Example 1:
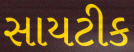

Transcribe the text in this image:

સાયટીક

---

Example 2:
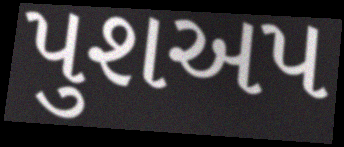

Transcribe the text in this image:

પુશઅપ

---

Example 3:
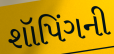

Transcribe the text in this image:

શૉપિંગની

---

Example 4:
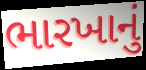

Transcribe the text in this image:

ભારખાનું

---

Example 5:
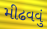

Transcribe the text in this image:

મીઢવવું